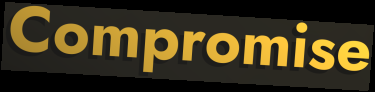
Compromise